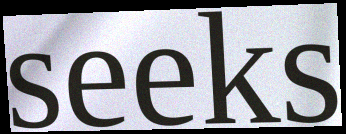
seeks